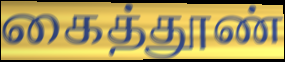
கைத்தூண்